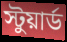
স্টুয়ার্ড